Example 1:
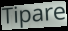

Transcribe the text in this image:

Tipare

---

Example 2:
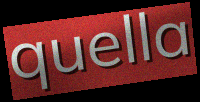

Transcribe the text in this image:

quella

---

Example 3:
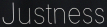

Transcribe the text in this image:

Justness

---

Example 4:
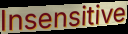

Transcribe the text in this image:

Insensitive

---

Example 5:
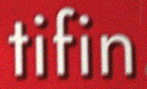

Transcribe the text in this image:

tifin